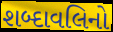
શબ્દાવલિનો